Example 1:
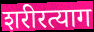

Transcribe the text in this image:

शरीरत्याग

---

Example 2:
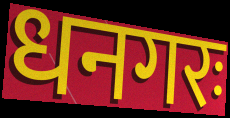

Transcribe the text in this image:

धनगरः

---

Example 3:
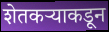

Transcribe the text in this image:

शेतकऱ्याकडून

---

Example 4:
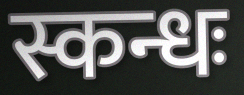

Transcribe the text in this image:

स्कन्धः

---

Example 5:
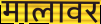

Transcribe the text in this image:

मालावर